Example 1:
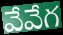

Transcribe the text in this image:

వేవేగ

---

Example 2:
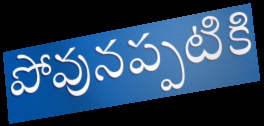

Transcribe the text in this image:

పోవునప్పటికి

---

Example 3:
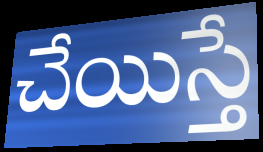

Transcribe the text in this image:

చేయిస్తే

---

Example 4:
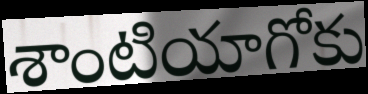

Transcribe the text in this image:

శాంటియాగోకు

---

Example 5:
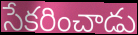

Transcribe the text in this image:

సేకరించాడు